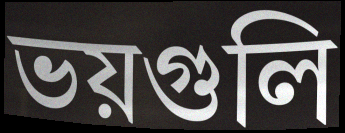
ভয়গুলি